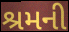
શ્રમની